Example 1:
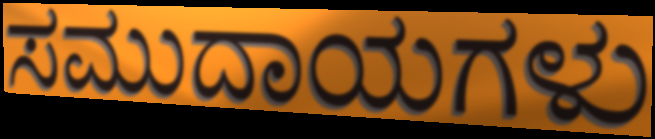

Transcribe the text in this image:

ಸಮುದಾಯಗಳು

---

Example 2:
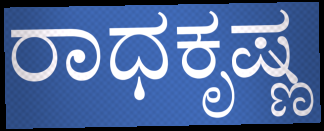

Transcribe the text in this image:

ರಾಧಕೃಷ್ಣ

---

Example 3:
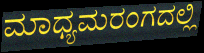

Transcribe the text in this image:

ಮಾಧ್ಯಮರಂಗದಲ್ಲಿ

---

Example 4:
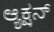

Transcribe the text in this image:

ಆ್ಯಕ್ಷನ್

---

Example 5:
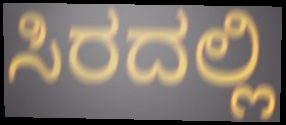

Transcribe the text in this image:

ಸಿರದಲ್ಲಿ